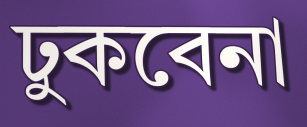
ঢুকবেনা